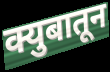
क्युबातून